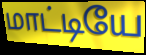
மாட்டியே